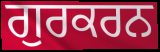
ਗੁਰਕਰਨ